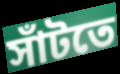
সাঁটতে